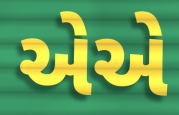
એએ